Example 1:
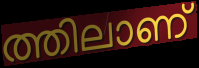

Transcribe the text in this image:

ത്തിലാണ്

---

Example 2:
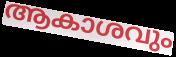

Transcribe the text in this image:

ആകാശവും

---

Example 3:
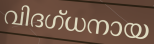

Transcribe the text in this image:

വിദഗ്ധനായ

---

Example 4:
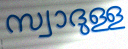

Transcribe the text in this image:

സ്വാദുള്ള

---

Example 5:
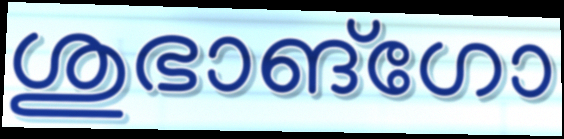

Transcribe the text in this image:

ശുഭാങ്ഗോ